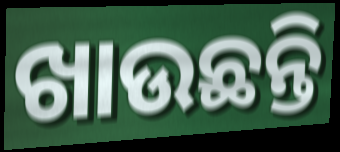
ଖାଉଛନ୍ତି